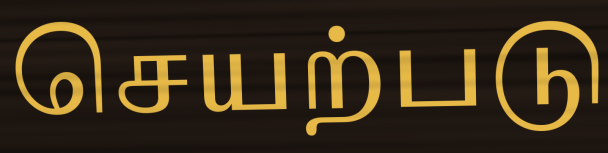
செயற்படு